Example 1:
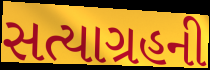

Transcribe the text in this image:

સત્યાગ્રહની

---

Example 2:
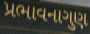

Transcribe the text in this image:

પ્રભાવનાગુણ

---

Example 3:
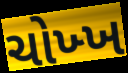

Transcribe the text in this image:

ચોખ્ખ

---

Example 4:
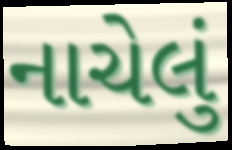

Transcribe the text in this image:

નાચેલું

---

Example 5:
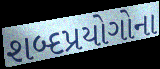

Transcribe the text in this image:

શબ્દપ્રયોગોના